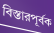
বিস্তারপূর্বক